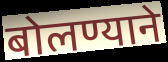
बोलण्याने